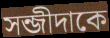
সন্জীদাকে